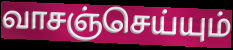
வாசஞ்செய்யும்